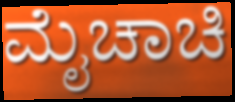
ಮೈಚಾಚಿ